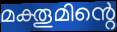
മക്തൂമിന്റെ